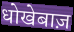
धोखेबाज़